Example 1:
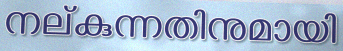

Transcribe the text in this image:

നല്‌കുന്നതിനുമായി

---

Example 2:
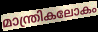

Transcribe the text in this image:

മാന്ത്രികലോകം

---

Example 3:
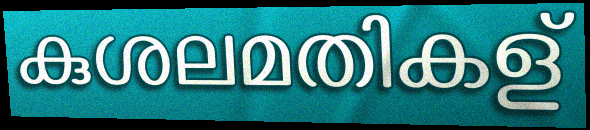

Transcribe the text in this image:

കുശലമതികള്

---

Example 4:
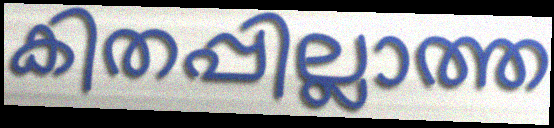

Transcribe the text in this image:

കിതപ്പില്ലാത്ത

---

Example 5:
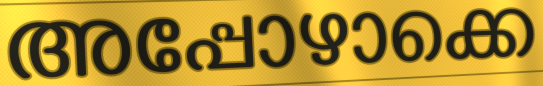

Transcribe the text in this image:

അപ്പോഴാക്കെ